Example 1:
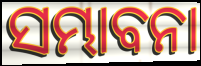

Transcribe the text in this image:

ସମ୍ଭାବନା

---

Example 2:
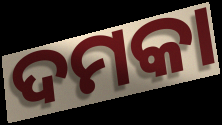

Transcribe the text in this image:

ଦମକା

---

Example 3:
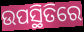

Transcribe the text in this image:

ଉପସ୍ଥିତିରେ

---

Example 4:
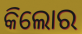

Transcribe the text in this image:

କିଲୋର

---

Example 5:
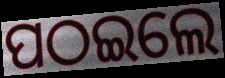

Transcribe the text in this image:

ପଠଇଲେ